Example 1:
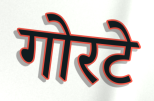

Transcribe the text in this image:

गोरटे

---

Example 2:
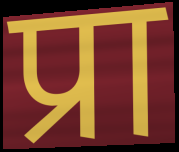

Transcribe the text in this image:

प्रा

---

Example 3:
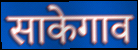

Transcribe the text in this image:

साकेगाव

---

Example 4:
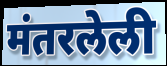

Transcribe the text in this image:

मंतरलेली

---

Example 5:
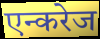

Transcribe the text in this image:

एन्करेज